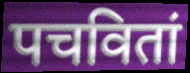
पचवितां